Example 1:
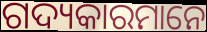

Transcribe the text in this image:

ଗଦ୍ୟକାରମାନେ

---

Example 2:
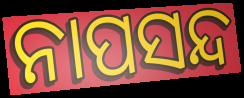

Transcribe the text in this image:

ନାପସନ୍ଦ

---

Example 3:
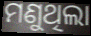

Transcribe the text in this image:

ମଣୁଥିଲା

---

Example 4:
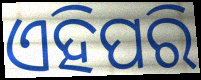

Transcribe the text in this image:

ଏହିପରି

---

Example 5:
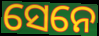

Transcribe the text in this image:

ସେନେ